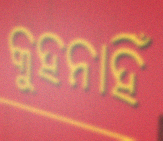
କୁହନାହିଁ